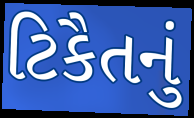
ટિકૈતનું